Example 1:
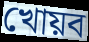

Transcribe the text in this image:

খোয়ব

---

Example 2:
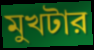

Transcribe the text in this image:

মুখটার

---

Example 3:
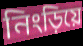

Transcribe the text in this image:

নিংড়িয়ে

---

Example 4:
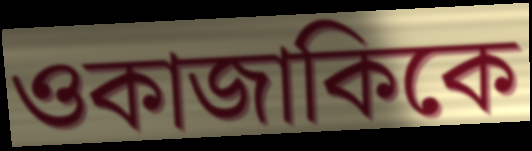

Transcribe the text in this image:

ওকাজাকিকে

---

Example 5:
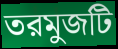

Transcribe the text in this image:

তরমুজটি